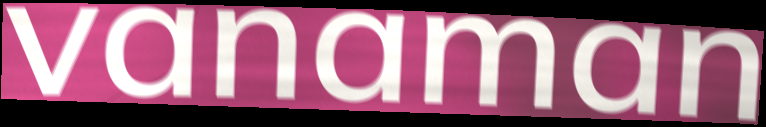
vanaman